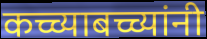
कच्च्याबच्च्यांनी